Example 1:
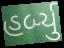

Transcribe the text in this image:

હર્બ્યુ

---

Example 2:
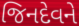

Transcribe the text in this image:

જિનદેવને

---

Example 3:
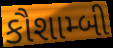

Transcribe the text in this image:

કૌશામ્બી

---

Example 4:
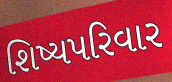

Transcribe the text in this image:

શિષ્યપરિવાર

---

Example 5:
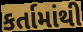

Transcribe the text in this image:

કર્તામાંથી